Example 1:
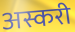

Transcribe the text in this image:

अस्करी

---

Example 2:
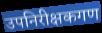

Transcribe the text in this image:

उपनिरीक्षकगण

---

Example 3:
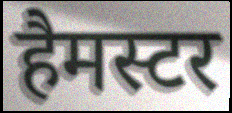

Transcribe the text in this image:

हैमस्टर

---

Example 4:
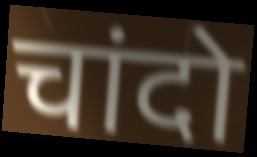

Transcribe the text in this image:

चांदो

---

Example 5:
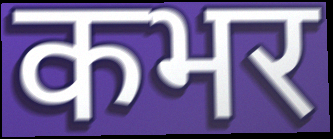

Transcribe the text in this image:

कभर